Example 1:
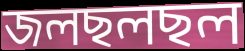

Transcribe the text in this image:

জলছলছল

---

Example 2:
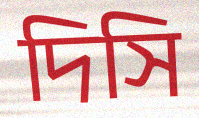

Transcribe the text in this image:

দিসি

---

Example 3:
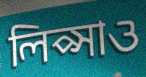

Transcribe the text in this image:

লিপ্সাও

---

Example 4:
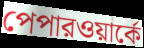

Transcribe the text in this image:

পেপারওয়ার্কে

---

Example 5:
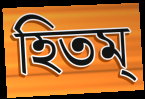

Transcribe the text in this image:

হিতম্